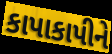
કાપાકાપીને